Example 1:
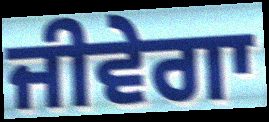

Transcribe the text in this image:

ਜੀਵੇਗਾ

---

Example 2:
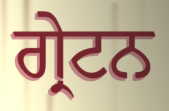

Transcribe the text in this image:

ਗ੍ਰੇਟਨ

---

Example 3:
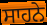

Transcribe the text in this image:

ਸਾਹਨੇ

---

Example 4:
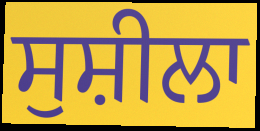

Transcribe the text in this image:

ਸੁਸ਼ੀਲਾ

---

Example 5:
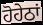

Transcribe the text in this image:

ਹੋਹੇਠਾਂ